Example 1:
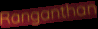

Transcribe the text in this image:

Ranganthan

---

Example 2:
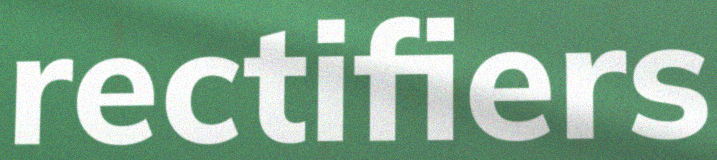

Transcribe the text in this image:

rectifiers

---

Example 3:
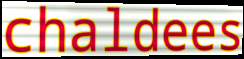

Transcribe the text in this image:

chaldees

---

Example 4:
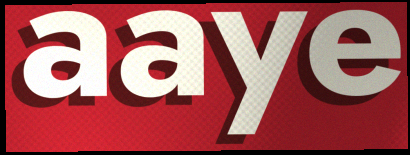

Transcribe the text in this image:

aaye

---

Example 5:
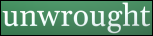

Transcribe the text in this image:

unwrought